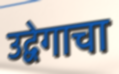
उद्वेगाचा